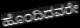
ಹೊಂದಿದವರೇ